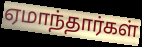
ஏமாந்தார்கள்